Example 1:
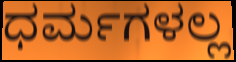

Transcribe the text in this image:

ಧರ್ಮಗಳಲ್ಲ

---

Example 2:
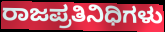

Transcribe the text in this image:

ರಾಜಪ್ರತಿನಿಧಿಗಳು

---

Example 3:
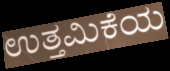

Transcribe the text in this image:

ಉತ್ತಮಿಕೆಯ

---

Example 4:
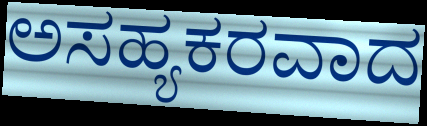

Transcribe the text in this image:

ಅಸಹ್ಯಕರವಾದ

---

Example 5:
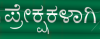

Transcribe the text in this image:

ಪ್ರೇಕ್ಷಕಳಾಗಿ